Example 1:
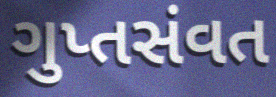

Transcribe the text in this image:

ગુપ્તસંવત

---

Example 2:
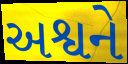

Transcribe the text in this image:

અશ્વને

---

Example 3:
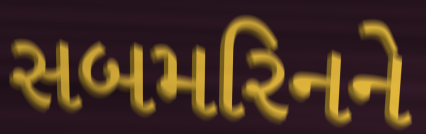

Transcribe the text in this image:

સબમરિનને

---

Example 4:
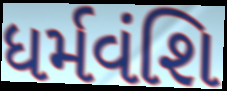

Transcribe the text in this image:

ધર્મવંશિ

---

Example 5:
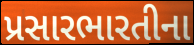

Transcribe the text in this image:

પ્રસારભારતીના